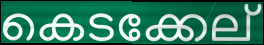
കെടക്കേല്